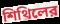
শিথিলের